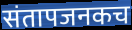
संतापजनकच